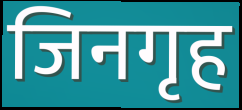
जिनगृह